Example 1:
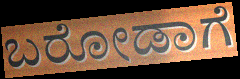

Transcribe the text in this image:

ಬರೋಡಾಗೆ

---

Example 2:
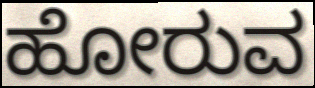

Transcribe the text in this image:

ಹೋರುವ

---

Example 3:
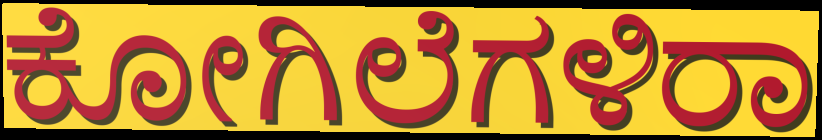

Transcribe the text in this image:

ಕೋಗಿಲೆಗಳಿರಾ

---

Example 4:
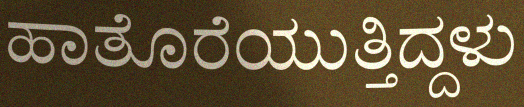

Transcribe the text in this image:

ಹಾತೊರೆಯುತ್ತಿದ್ದಳು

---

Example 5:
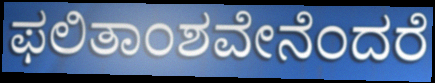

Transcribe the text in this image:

ಫಲಿತಾಂಶವೇನೆಂದರೆ